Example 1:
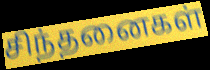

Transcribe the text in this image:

சிந்தனைகள்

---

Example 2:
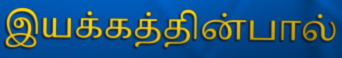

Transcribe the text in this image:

இயக்கத்தின்பால்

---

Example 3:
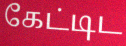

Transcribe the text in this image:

கேட்டிட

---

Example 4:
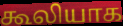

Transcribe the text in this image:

கூலியாக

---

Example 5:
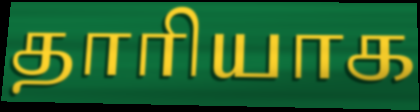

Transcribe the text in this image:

தாரியாக